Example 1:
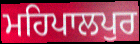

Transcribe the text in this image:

ਮਹਿਪਾਲਪੁਰ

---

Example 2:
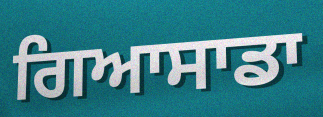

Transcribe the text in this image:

ਗਿਆਸਾਡਾ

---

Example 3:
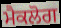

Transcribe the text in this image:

ਮੈਕਲੋਗ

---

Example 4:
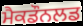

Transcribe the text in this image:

ਮੈਕਡੌਨਲਡ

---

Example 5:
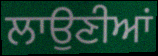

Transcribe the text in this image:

ਲਾਉਣੀਆਂ